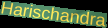
Harischandra